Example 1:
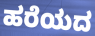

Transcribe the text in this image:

ಹರೆಯದ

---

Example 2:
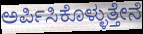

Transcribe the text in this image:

ಅರ್ಪಿಸಿಕೊಳ್ಳುತ್ತೇನೆ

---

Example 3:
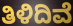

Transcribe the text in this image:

ತಿಳಿದಿವೆ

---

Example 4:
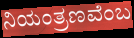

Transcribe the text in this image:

ನಿಯಂತ್ರಣವೆಂಬ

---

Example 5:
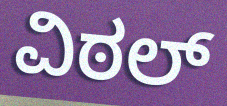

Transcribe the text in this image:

ವಿಠಲ್